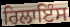
ਰਿਲਾਇੰਸ